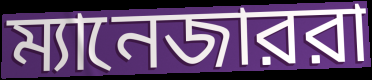
ম্যানেজাররা